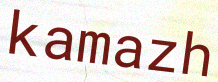
kamazh